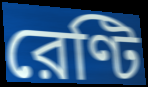
রেণ্টি